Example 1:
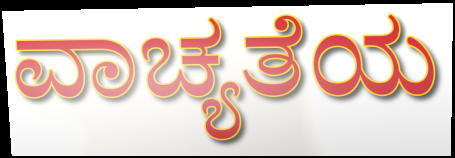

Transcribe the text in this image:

ವಾಚ್ಯತೆಯ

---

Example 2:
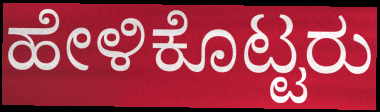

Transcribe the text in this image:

ಹೇಳಿಕೊಟ್ಟರು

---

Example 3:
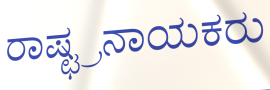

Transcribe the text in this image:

ರಾಷ್ಟ್ರನಾಯಕರು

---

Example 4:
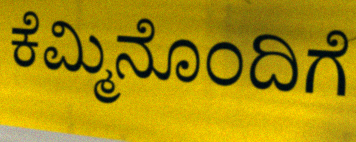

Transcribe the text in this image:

ಕೆಮ್ಮಿನೊಂದಿಗೆ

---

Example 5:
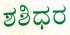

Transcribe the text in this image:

ಶಶಿಧರ